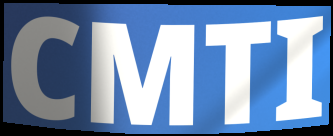
CMTI